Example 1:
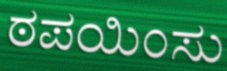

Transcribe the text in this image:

ಠಪಯಿಂಸು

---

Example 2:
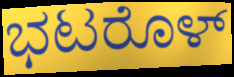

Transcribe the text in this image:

ಭಟರೊಳ್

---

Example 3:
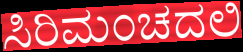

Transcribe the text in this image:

ಸಿರಿಮಂಚದಲಿ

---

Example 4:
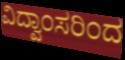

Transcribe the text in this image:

ವಿದ್ವಾಂಸರಿಂದ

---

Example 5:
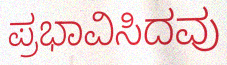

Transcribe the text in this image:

ಪ್ರಭಾವಿಸಿದವು